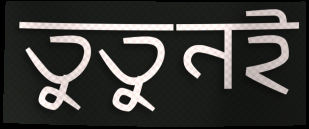
তুতুনই